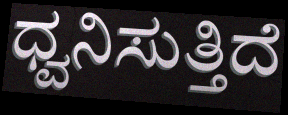
ಧ್ವನಿಸುತ್ತಿದೆ